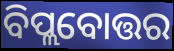
ବିପ୍ଲବୋତ୍ତର